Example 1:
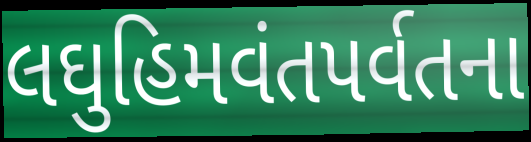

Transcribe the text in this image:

લઘુહિમવંતપર્વતના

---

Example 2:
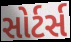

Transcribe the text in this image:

સોર્ટર્સ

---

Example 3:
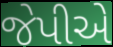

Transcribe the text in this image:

જેપીએ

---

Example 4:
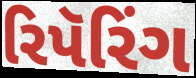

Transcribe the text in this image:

રિપૅરિંગ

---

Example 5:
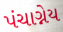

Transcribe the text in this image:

પંચાગ્નેય